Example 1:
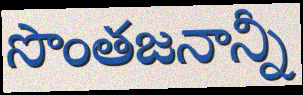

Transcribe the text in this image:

సొంతజనాన్నీ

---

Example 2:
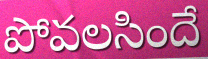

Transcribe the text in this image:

పోవలసిందే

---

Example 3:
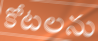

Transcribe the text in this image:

కోటలను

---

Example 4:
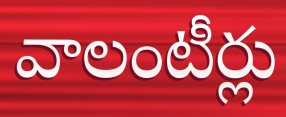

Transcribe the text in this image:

వాలంటీర్లు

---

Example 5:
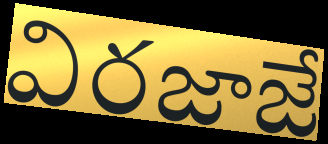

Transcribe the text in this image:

విరజాజే